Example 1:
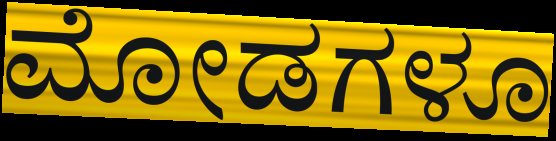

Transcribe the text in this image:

ಮೋಡಗಳೂ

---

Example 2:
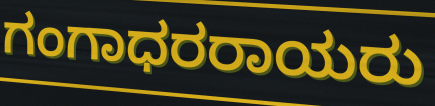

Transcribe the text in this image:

ಗಂಗಾಧರರಾಯರು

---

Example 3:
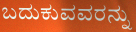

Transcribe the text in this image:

ಬದುಕುವವರನ್ನು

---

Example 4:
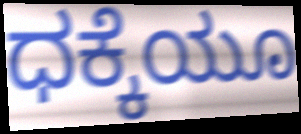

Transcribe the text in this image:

ಧಕ್ಕೆಯೂ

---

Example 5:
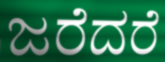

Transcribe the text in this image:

ಜರೆದರೆ